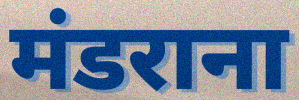
मंडराना